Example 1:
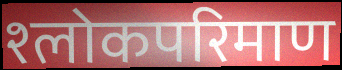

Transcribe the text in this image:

श्लोकपरिमाण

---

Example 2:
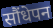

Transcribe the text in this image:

सौंधेपन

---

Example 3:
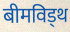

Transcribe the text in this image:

बीमविड्थ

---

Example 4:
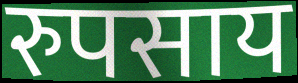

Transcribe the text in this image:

रुपसाय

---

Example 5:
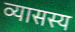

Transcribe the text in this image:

व्यासस्य